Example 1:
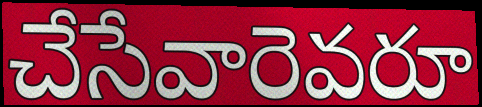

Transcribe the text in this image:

చేసేవారెవరూ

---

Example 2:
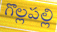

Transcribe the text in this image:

గొల్లపల్లి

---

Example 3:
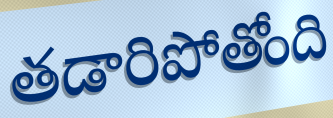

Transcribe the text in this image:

తడారిపోతోంది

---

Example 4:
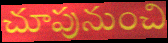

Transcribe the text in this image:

చూపునుంచి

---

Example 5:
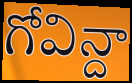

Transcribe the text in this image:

గోవిన్దా